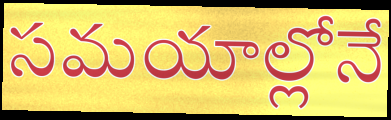
సమయాల్లోనే